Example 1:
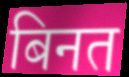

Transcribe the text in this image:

बिनत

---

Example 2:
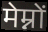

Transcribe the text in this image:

मेम्नों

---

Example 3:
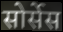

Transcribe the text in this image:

सोर्सेस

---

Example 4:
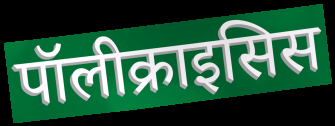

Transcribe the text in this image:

पॉलीक्राइसिस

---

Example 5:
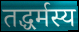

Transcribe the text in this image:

तद्धर्मस्य